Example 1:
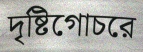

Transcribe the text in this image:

দৃষ্টিগোচরে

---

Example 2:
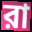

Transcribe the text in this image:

রা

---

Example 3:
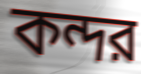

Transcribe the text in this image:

কন্দর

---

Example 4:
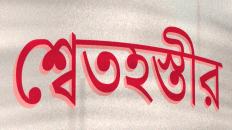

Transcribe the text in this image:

শ্বেতহস্তীর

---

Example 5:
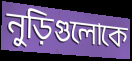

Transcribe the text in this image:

নুড়িগুলোকে